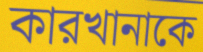
কারখানাকে